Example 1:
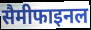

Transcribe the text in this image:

सैमीफाइनल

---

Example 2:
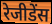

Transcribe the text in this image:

रेजीडेंस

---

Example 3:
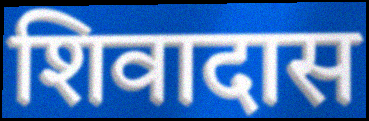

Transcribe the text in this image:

शिवादास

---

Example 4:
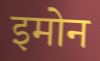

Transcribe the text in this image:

इमोन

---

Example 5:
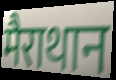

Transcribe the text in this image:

मैराथान